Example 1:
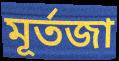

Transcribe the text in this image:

মূর্তজা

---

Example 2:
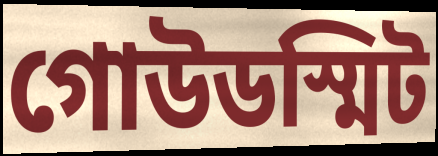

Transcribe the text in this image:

গোউডস্মিট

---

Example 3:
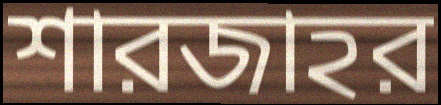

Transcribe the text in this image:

শারজাহর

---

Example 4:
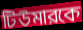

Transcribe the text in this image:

টিউমারকে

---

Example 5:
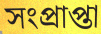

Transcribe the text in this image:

সংপ্রাপ্তা